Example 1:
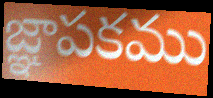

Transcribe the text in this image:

జ్ఞాపకము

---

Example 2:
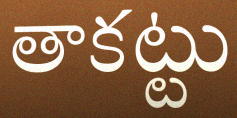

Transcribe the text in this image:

తాకట్టు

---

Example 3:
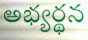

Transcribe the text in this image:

అభ్యర్థన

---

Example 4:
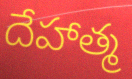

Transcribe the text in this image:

దేహాత్మ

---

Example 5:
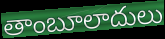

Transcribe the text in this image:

తాంబూలాదులు